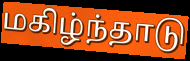
மகிழ்ந்தாடு